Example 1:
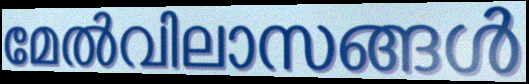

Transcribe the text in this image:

മേൽവിലാസങ്ങൾ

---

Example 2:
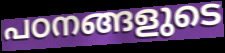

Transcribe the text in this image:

പഠനങ്ങളുടെ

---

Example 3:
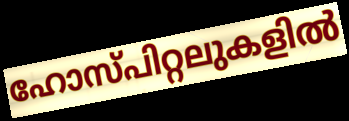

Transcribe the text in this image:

ഹോസ്പിറ്റലുകളിൽ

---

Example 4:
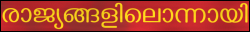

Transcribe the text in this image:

രാജ്യങ്ങളിലൊന്നായി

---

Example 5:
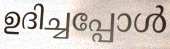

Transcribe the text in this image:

ഉദിച്ചപ്പോൾ